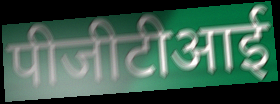
पीजीटीआई